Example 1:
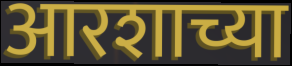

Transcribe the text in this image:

आरशाच्या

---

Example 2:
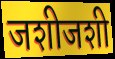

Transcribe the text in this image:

जशीजशी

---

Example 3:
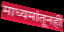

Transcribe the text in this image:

माध्यमांतूनही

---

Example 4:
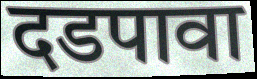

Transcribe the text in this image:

दडपावा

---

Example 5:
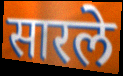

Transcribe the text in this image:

सारले